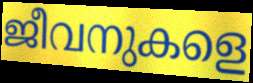
ജീവനുകളെ